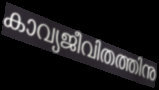
കാവ്യജീവിതത്തിനു